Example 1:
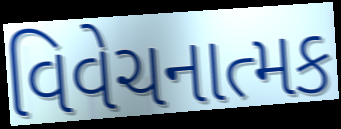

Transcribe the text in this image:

વિવેચનાત્મક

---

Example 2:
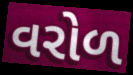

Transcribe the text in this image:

વરોળ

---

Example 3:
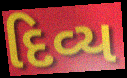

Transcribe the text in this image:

દિવ્ય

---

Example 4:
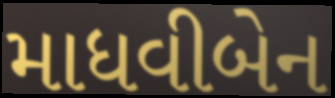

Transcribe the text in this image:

માધવીબેન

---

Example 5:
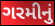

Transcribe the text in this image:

ગરમીનું